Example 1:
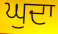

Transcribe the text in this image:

ਘੁਦਾ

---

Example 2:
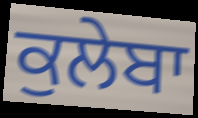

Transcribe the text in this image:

ਕੁਲੇਬਾ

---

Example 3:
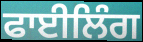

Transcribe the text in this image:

ਫਾਈਲਿੰਗ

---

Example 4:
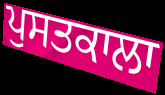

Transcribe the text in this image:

ਪੁਸਤਕਾਲਾ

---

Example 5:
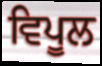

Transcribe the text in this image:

ਵਿਪੂਲ